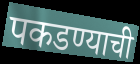
पकडण्याची